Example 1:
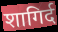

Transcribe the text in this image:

शागिर्द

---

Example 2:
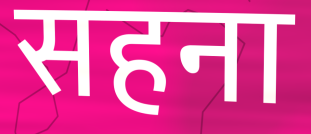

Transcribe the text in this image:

सहना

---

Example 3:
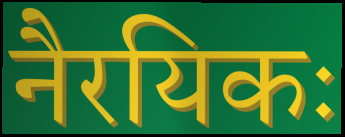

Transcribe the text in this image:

नैरयिकः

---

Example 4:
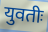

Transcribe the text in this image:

युवतीः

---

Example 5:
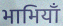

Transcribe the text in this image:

भाभियाँ